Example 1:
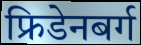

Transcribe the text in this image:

फ्रिडेनबर्ग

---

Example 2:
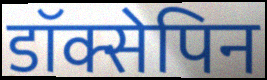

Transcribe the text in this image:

डॉक्सेपिन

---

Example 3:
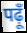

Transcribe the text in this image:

पढ़ूँ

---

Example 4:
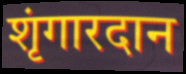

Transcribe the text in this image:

शृंगारदान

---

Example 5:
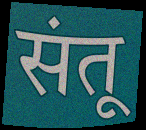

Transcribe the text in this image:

संतू